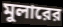
মুলারের